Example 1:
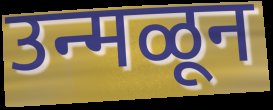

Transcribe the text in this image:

उन्मळून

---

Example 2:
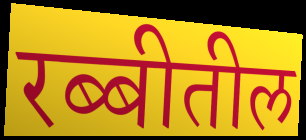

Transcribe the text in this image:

रब्बीतील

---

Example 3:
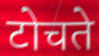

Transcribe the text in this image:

टोचते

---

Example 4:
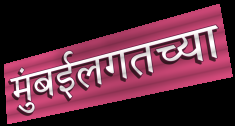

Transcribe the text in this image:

मुंबईलगतच्या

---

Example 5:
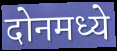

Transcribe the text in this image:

दोनमध्ये